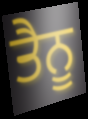
ਤੈਨੂ